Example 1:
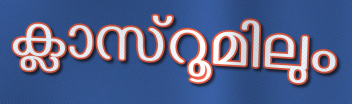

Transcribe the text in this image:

ക്ലാസ്റൂമിലും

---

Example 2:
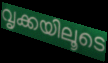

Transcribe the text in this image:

വൃക്കയിലൂടെ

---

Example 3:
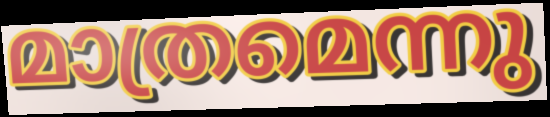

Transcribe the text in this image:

മാത്രമെന്നു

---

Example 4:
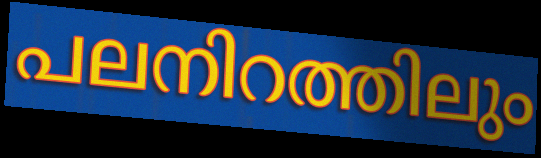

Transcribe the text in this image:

പലനിറത്തിലും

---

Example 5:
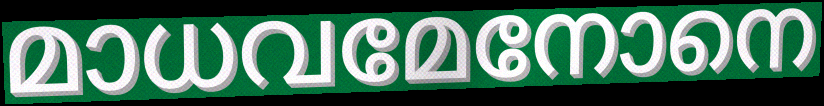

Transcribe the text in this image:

മാധവമേനോനെ